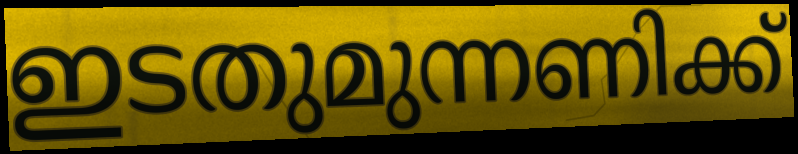
ഇടതുമുന്നണിക്ക്